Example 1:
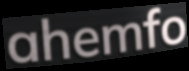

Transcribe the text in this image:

ahemfo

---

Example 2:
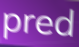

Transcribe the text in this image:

pred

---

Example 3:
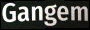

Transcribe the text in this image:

Gangem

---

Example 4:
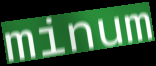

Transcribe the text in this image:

minum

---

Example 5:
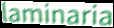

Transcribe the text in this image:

laminaria